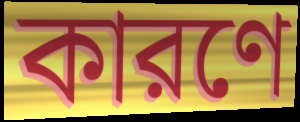
কারণে